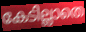
കേടില്ലാതെ